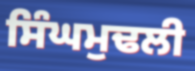
ਸਿੰਘਮੁਢਲੀ